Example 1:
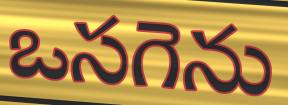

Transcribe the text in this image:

ఒసగెను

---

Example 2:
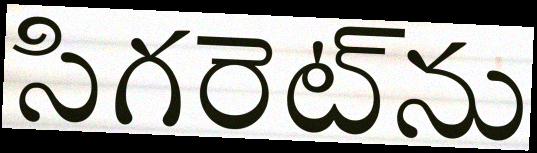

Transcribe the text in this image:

సిగరెట్‌ను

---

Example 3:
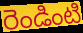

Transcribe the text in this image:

రెండింటి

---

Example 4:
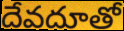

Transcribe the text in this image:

దేవదూతో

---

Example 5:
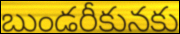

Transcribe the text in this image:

బుండరీకునకు